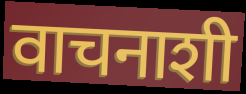
वाचनाशी